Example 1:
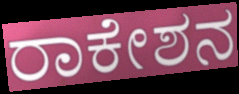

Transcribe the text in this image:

ರಾಕೇಶನ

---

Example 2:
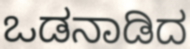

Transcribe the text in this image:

ಒಡನಾಡಿದ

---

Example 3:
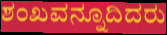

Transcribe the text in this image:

ಶಂಖವನ್ನೂದಿದರು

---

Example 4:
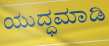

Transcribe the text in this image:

ಯುದ್ಧಮಾಡಿ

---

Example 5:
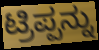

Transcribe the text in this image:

ಟ್ರಿಪ್ಪನ್ನು